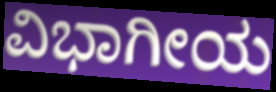
ವಿಭಾಗೀಯ